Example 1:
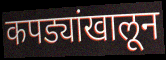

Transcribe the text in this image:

कपड्यांखालून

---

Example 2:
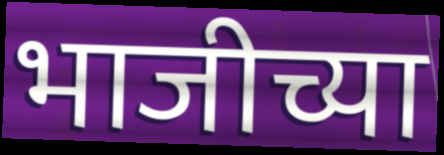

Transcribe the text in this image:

भाजीच्या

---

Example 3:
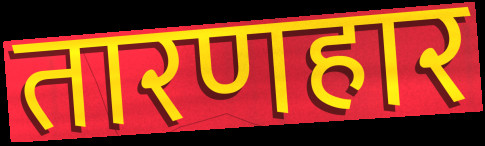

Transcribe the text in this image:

तारणहार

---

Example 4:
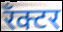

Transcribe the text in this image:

रँक्टर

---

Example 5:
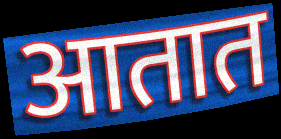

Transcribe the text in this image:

आतात